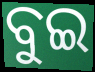
ବୁଇ